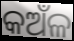
କଅଁଳ